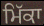
ਮਿੱਕਾ